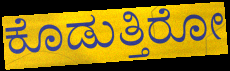
ಕೊಡುತ್ತಿರೋ